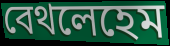
বেথলেহেম